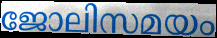
ജോലിസമയം